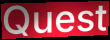
Quest